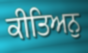
ਕੀਤਿਅਨੁ